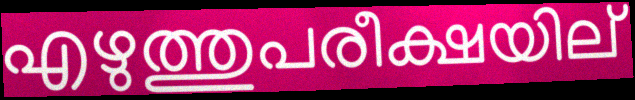
എഴുത്തുപരീക്ഷയില്